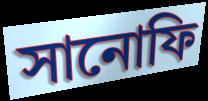
সানোফি